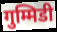
गुम्मिडी